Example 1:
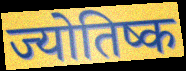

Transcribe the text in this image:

ज्योतिष्क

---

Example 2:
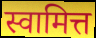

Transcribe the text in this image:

स्वामित्त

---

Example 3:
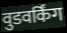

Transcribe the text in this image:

वुडवर्किंग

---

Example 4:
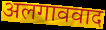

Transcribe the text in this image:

अलगाववाद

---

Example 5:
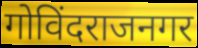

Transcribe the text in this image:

गोविंदराजनगर